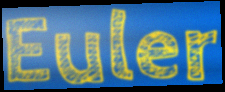
Euler